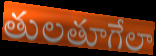
తులతూగేలా